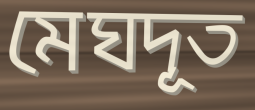
মেঘদূত